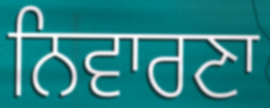
ਨਿਵਾਰਣਾ